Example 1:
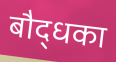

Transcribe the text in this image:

बौद्धका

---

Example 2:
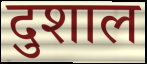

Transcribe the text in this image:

दुशाल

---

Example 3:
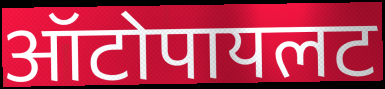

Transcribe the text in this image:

ऑटोपायलट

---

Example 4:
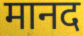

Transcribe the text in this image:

मानद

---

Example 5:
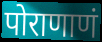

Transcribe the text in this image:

पोराणाणं